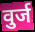
वुर्ज